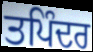
ਤਪਿੰਦਰ